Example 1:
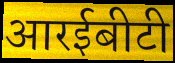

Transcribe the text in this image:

आरईबीटी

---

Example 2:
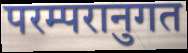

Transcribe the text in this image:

परम्परानुगत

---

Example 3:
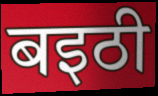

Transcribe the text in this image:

बइठी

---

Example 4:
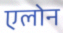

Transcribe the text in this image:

एलोन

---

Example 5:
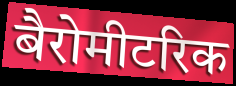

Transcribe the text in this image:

बैरोमीटरिक